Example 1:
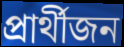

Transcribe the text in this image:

প্ৰাৰ্থীজন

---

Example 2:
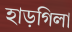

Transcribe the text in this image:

হাড়গিলা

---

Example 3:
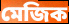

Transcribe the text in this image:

মেজিক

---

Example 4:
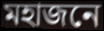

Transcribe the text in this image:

মহাজনে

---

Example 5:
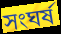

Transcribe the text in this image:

সংঘৰ্ষ